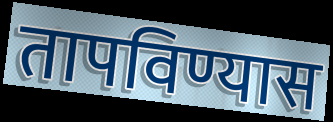
तापविण्यास